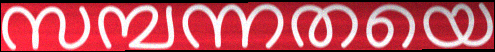
സമ്പന്നതയെ